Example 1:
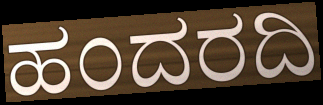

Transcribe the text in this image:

ಹಂದರದಿ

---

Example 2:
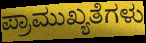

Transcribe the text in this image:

ಪ್ರಾಮುಖ್ಯತೆಗಳು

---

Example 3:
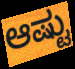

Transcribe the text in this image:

ಆಷ್ಟು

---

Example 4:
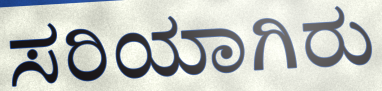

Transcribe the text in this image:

ಸರಿಯಾಗಿರು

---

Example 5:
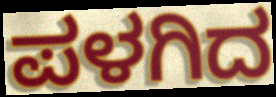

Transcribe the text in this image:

ಪಳಗಿದ